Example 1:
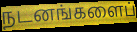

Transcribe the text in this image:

நடனங்களைப்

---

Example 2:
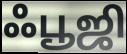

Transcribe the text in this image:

ஃபூஜி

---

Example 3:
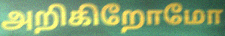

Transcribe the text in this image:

அறிகிறோமோ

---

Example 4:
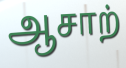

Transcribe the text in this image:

ஆசாற்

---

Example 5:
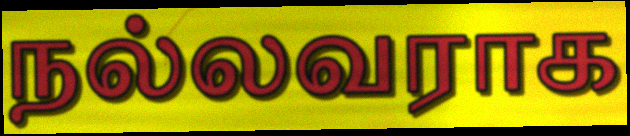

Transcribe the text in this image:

நல்லவராக